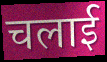
चलाई